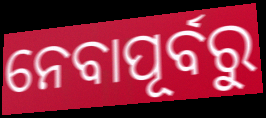
ନେବାପୂର୍ବରୁ